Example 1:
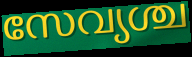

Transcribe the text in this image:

സേവ്യശ്ച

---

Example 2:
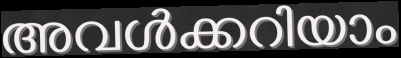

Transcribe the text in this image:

അവൾക്കറിയാം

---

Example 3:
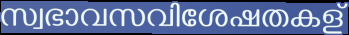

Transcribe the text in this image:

സ്വഭാവസവിശേഷതകള്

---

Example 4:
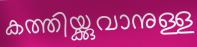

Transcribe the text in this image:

കത്തിയ്ക്കുവാനുള്ള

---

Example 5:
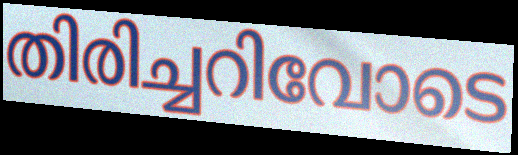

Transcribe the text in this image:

തിരിച്ചറിവോടെ